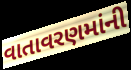
વાતાવરણમાંની